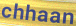
chhaan